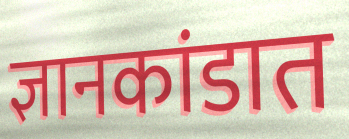
ज्ञानकांडात